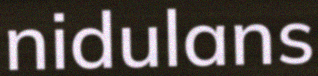
nidulans